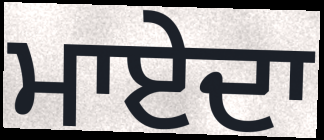
ਮਾਏਦਾ